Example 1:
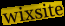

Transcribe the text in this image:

wixsite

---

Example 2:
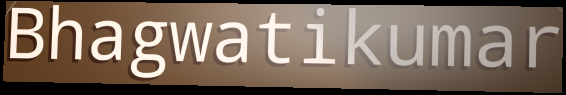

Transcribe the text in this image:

Bhagwatikumar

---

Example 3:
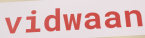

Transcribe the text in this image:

vidwaan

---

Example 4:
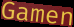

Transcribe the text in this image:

Gamen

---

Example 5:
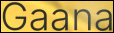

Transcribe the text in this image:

Gaana